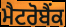
ਮੈਟਰੋਬੈਂਕ